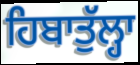
ਹਿਬਾਤੁੱਲ੍ਹਾ